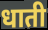
धाती